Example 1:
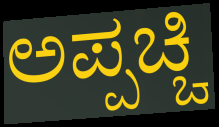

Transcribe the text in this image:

ಅಪ್ಪಚ್ಚಿ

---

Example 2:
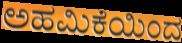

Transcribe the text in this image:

ಅಹಮಿಕೆಯಿಂದ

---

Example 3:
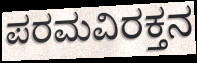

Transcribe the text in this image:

ಪರಮವಿರಕ್ತನ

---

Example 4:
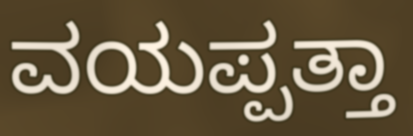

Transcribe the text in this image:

ವಯಪ್ಪತ್ತಾ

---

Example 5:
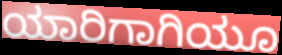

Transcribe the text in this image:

ಯಾರಿಗಾಗಿಯೂ